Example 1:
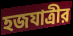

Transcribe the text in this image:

হজযাত্রীর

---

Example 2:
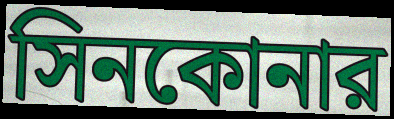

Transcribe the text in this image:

সিনকোনার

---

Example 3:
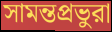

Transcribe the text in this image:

সামন্তপ্রভুরা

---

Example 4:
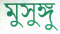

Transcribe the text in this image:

মুসুঙ্গু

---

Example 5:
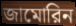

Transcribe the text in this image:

জামোরিন